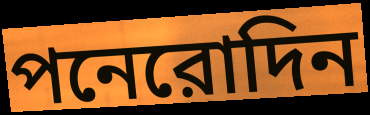
পনেরোদিন